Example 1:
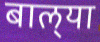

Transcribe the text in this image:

बाल्या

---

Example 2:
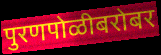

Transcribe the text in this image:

पुरणपोळीबरोबर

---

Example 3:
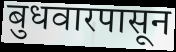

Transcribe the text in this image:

बुधवारपासून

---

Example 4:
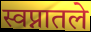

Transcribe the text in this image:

स्वप्नातले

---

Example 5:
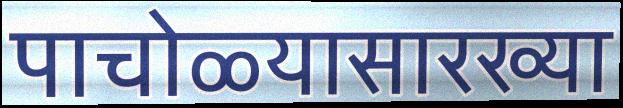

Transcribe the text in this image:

पाचोळ्यासारख्या